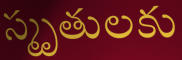
స్మృతులకు